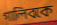
গালিবকে